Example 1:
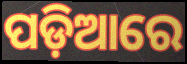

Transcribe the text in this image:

ପଡ଼ିଆରେ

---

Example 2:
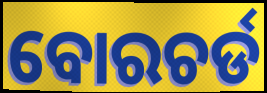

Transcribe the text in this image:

ବୋରଚର୍ଡ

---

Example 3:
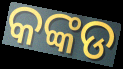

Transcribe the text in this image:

କଙ୍କଡ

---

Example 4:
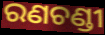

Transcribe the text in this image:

ରଣଚଣ୍ଡୀ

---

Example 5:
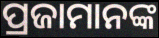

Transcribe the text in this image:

ପ୍ରଜାମାନଙ୍କ